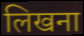
लिखना